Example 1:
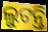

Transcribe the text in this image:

ଲୁଟନ୍ତି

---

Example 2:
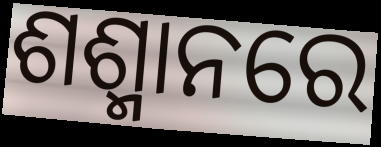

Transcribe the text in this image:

ଶଶ୍ମାନରେ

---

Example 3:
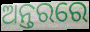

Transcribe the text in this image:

ଅନ୍ତରରେ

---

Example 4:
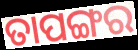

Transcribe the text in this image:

ତାପଙ୍ଗର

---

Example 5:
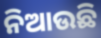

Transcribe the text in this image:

ନିଆଉଛି